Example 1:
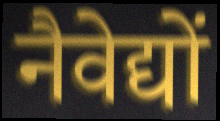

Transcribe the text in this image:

नैवेद्यों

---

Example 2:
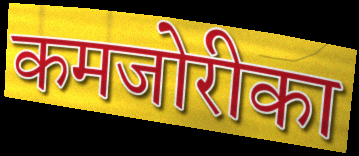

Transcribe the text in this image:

कमजोरीका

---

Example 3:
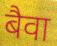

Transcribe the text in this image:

बैवा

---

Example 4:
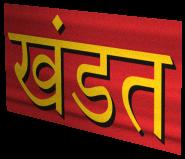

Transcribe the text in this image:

खंडत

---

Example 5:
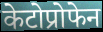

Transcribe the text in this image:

केटोप्रोफेन